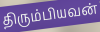
திரும்பியவன்